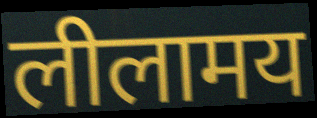
लीलामय